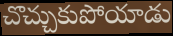
చొచ్చుకుపోయాడు